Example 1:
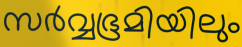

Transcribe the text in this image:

സർവ്വഭൂമിയിലും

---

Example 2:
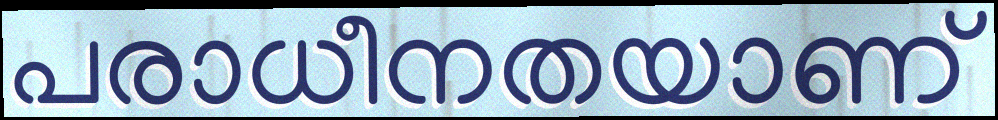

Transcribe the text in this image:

പരാധീനതയാണ്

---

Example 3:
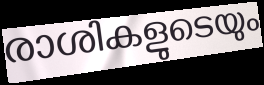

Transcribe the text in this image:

രാശികളുടെയും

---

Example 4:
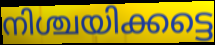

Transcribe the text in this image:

നിശ്ചയിക്കട്ടെ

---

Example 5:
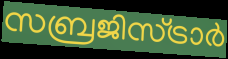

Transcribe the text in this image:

സബ്രജിസ്ട്രാർ